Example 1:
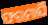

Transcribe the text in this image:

ଫରମାସି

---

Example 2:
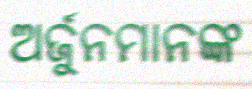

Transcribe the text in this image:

ଅର୍ଜୁନମାନଙ୍କ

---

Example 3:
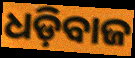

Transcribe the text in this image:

ଧଡ଼ିବାଜ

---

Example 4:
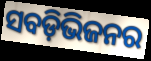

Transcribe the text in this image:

ସବଡ଼ିଭିଜନର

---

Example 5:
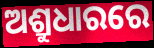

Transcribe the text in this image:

ଅଶ୍ରୁଧାରରେ